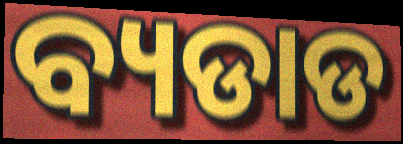
ବ୍ୟଡାଡ